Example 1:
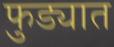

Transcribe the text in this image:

फुड्यात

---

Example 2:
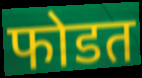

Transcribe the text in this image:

फोडत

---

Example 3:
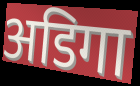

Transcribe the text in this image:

अडिगा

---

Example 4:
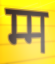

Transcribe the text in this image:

म्म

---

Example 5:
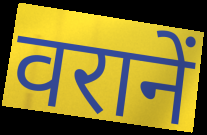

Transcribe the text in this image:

वरानें